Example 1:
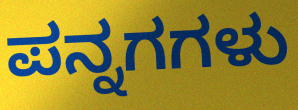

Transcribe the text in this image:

ಪನ್ನಗಗಳು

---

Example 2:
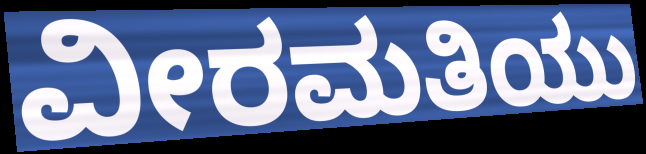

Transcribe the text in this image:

ವೀರಮತಿಯು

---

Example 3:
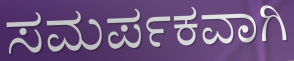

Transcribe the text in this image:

ಸಮರ್ಪಕವಾಗಿ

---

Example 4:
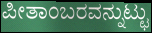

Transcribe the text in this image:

ಪೀತಾಂಬರವನ್ನುಟ್ಟು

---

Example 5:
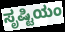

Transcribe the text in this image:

ಸೃಷ್ಟಿಯಂ